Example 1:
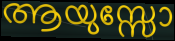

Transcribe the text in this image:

ആയുസ്സോ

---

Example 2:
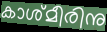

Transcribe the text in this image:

കാശ്മീരിനു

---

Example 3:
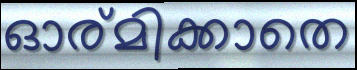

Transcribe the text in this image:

ഓര്മിക്കാതെ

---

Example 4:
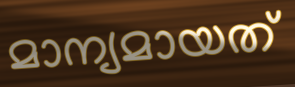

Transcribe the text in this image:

മാന്യമായത്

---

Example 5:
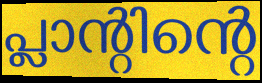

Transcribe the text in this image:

പ്ലാന്റിന്റെ